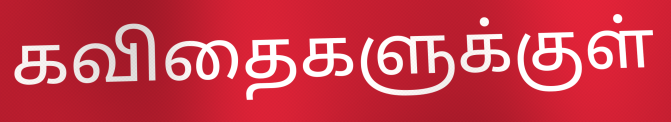
கவிதைகளுக்குள்